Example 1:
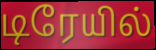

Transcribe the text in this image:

டிரேயில்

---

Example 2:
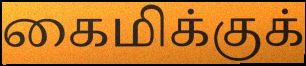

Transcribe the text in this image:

கைமிக்குக்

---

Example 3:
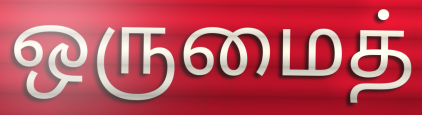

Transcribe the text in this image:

ஒருமைத்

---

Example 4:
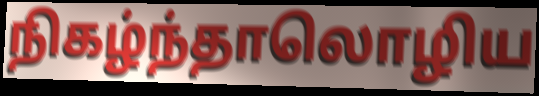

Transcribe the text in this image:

நிகழ்ந்தாலொழிய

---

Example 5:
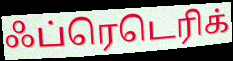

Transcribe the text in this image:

ஃப்ரெடெரிக்